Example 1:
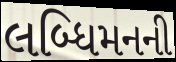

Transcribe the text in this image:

લબ્ધિમનની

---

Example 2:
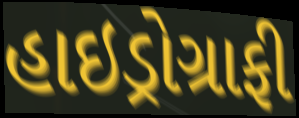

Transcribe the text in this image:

હાઇડ્રોગ્રાફી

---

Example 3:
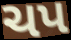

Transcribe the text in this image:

ચપ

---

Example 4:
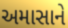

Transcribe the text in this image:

અમાસાને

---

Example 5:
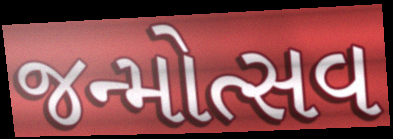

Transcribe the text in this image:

જન્મોત્સવ